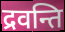
द्रवन्ति